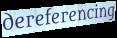
dereferencing